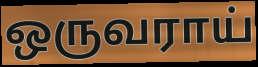
ஒருவராய்